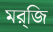
মর্‌জি